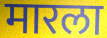
मारला